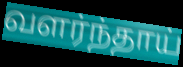
வளர்ந்தாய்